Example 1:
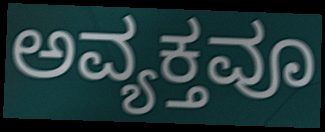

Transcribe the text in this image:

ಅವ್ಯಕ್ತವೂ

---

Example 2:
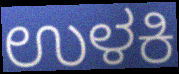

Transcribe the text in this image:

ಉಳಕಿ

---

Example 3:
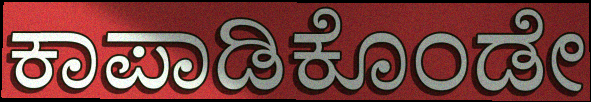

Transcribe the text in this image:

ಕಾಪಾಡಿಕೊಂಡೇ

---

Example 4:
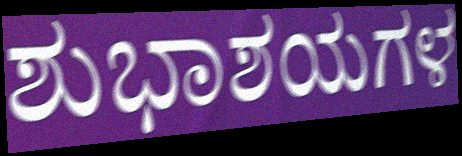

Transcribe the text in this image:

ಶುಭಾಶಯಗಳ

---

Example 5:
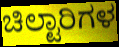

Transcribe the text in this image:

ಚಿಲ್ಟಾರಿಗಳ